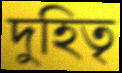
দুহিতৃ